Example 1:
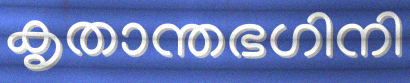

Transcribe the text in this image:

കൃതാന്തഭഗിനി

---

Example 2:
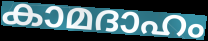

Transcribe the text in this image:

കാമദാഹം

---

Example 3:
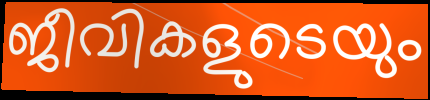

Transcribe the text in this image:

ജീവികളുടെയും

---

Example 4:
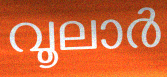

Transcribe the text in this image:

വൂലാർ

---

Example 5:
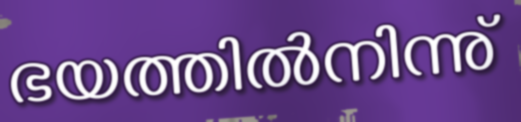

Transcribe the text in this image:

ഭയത്തിൽനിന്നു്